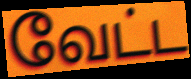
வேட்ட